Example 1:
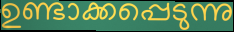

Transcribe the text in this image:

ഉണ്ടാക്കപ്പെടുന്നു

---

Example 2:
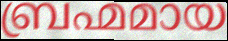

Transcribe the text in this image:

ബ്രഹ്മമായ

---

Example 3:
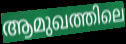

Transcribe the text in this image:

ആമുഖത്തിലെ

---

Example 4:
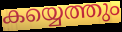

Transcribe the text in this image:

കയ്യെത്തും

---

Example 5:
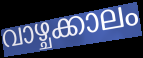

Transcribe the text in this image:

വാഴ്ചക്കാലം